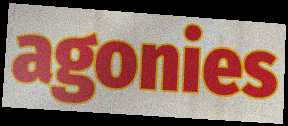
agonies